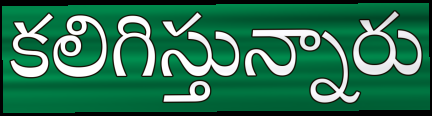
కలిగిస్తున్నారు